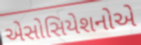
એસોસિયેશનોએ